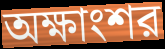
অক্ষাংশর